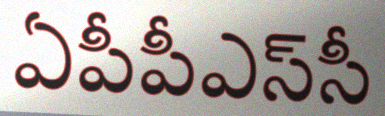
ఏపీపీఎస్‌సీ